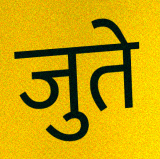
जुते